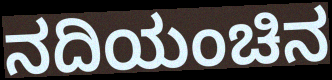
ನದಿಯಂಚಿನ